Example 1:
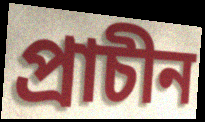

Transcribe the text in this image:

প্ৰাচীন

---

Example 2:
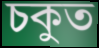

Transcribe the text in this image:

চকুত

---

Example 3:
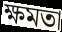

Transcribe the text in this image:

ক্ষমতা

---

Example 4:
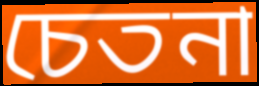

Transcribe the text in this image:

চেতনা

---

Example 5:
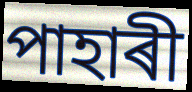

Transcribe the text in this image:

পাহাৰী